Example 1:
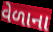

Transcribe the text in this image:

વેળાના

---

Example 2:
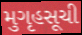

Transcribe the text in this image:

મુગૃહસૂચી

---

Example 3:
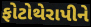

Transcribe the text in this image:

ફોટોથેરાપીને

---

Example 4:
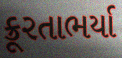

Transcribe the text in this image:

ક્રૂરતાભર્યા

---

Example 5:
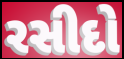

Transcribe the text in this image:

રસીદો